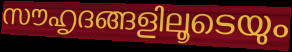
സൗഹൃദങ്ങളിലൂടെയും